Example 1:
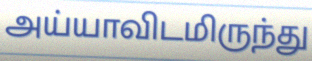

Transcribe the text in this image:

அய்யாவிடமிருந்து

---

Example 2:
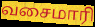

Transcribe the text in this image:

வசைமாரி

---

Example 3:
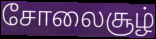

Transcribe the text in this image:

சோலைசூழ்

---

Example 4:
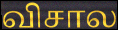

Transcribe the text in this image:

விசால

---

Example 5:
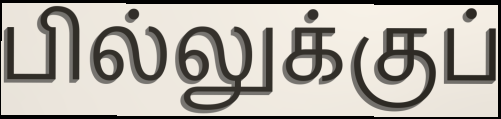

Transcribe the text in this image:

பில்லுக்குப்